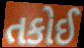
તકોઈ